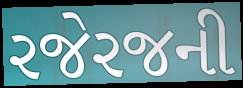
રજેરજની